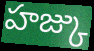
హజ్కు